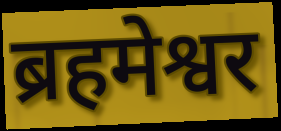
ब्रहमेश्वर